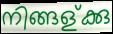
നിങ്ങള്ക്കു